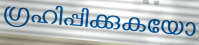
ഗ്രഹിപ്പിക്കുകയോ